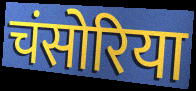
चंसोरिया